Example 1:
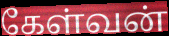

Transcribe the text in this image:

கேள்வன்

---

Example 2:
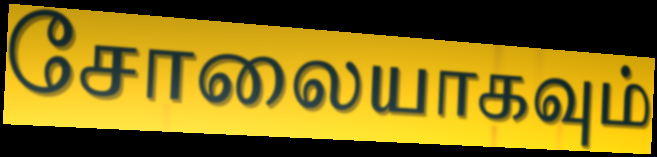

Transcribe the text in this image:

சோலையாகவும்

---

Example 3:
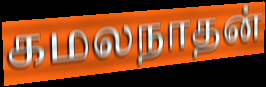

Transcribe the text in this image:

கமலநாதன்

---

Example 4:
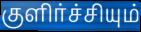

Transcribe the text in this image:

குளிர்ச்சியும்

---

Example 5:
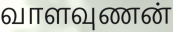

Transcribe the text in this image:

வாளவுணன்